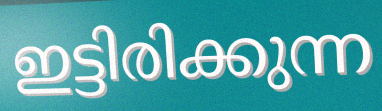
ഇട്ടിരിക്കുന്ന